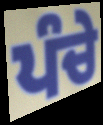
ਪੰਚੇ